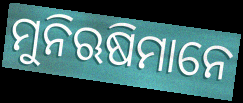
ମୁନିଋଷିମାନେ